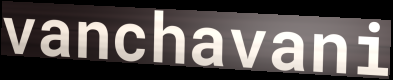
vanchavani